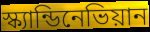
স্ক্যান্ডিনেভিয়ান